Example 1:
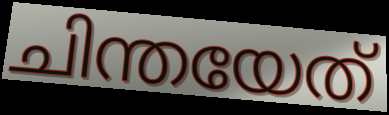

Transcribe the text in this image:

ചിന്തയേത്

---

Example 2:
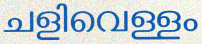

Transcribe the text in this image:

ചളിവെള്ളം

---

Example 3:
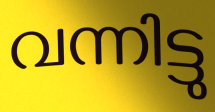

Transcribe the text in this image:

വന്നിട്ടു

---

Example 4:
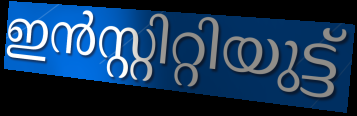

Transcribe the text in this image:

ഇൻസ്റ്റിറ്റിയുട്ട്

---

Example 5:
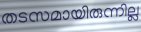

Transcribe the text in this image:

തടസമായിരുന്നില്ല